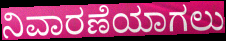
ನಿವಾರಣೆಯಾಗಲು